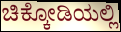
ಚಿಕ್ಕೋಡಿಯಲ್ಲಿ